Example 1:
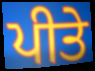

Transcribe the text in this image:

ਪੀਤੇ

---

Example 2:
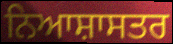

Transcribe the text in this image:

ਨਿਆਸ਼ਾਸਤਰ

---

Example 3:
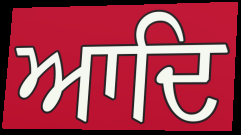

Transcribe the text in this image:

ਆਦਿ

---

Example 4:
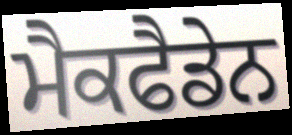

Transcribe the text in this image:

ਮੈਕਫੈਡੇਨ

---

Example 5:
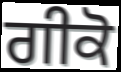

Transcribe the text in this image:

ਗੀਕੋ